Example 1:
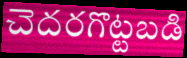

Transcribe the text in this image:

చెదరగొట్టబడి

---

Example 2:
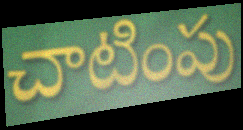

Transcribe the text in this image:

చాటింపు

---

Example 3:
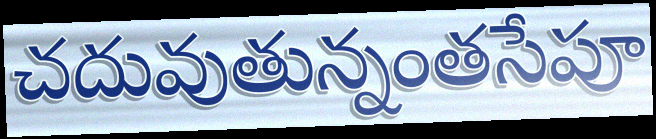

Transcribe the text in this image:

చదువుతున్నంతసేపూ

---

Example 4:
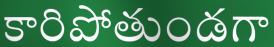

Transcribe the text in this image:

కారిపోతుండగా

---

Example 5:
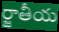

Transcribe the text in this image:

ర్జాతీయ